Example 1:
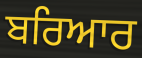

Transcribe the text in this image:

ਬਰਿਆਰ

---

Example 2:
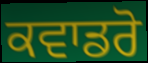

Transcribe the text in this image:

ਕਵਾਡਰੋ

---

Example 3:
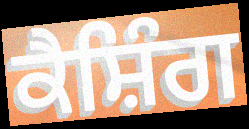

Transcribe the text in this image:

ਕੈਸ਼ਿੰਗ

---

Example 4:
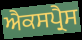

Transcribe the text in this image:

ਐਕਸਪ੍ਰੈਸ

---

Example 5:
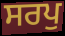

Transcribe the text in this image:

ਸਰਪੁ